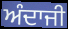
ਅੰਦਾਜੀ